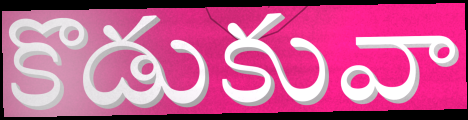
కొడుకువా